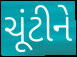
ચૂંટીને